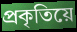
প্ৰকৃতিয়ে